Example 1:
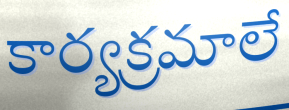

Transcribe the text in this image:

కార్యక్రమాలే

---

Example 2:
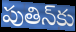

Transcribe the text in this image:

పుతిన్‌కు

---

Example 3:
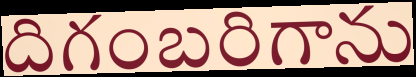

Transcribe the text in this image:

దిగంబరిగాను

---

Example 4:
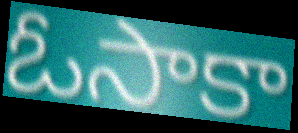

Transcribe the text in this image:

ఓసాకా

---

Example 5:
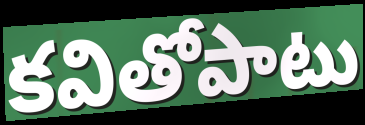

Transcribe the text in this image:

కవితోపాటు